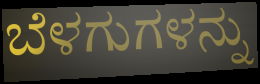
ಬೆಳಗುಗಳನ್ನು